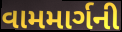
વામમાર્ગની